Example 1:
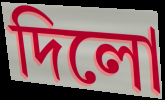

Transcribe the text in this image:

দিলো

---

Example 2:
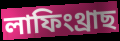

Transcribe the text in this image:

লাফিংথ্ৰাছ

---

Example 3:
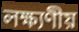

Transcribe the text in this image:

লক্ষ্যণীয়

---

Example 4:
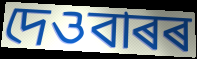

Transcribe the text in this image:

দেওবাৰৰ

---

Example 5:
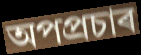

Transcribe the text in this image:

অপপ্ৰচাৰ